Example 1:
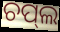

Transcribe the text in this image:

ଚପ୍‌ଲ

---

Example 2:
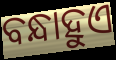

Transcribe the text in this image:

ବନ୍ଧାହୁଏ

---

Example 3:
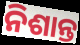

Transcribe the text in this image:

ନିଶାନ୍ତ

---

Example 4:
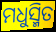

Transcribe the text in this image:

ମଧୁସ୍ମିତ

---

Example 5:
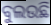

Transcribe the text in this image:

ବୁଲଉଛି